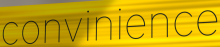
convinience